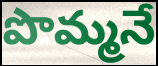
పొమ్మనే